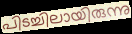
പിടച്ചിലായിരുന്നു